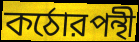
কঠোরপন্থী